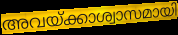
അവയ്ക്കാശ്വാസമായി